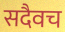
सदैवच